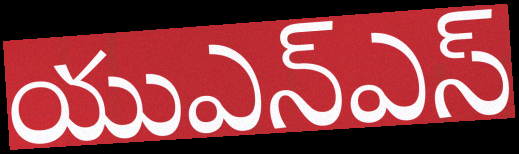
యుఎన్ఎస్